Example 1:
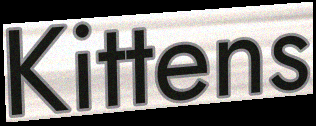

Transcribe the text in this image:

Kittens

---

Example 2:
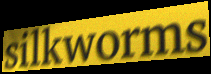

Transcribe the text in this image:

silkworms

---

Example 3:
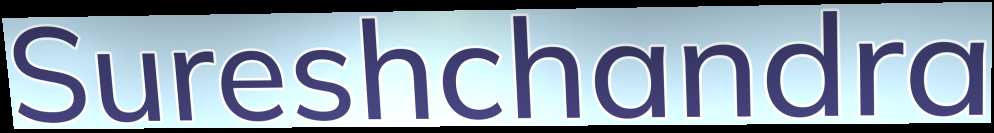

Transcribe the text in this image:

Sureshchandra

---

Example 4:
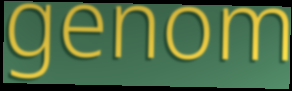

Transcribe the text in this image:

genom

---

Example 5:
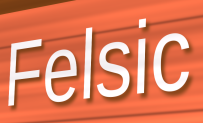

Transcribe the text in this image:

Felsic